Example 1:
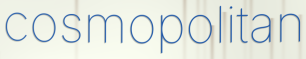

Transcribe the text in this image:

cosmopolitan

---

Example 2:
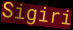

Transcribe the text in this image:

Sigiri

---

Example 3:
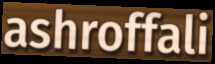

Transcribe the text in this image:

ashroffali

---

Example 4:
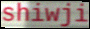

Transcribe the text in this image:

shiwji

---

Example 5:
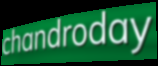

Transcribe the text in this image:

chandroday